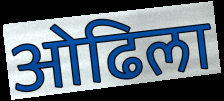
ओढिला